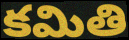
కమితి